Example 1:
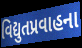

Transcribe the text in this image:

વિદ્યુતપ્રવાહના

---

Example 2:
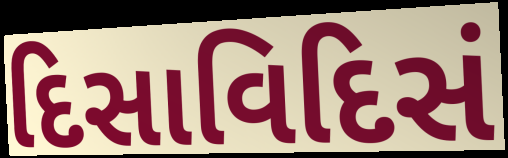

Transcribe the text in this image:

દિસાવિદિસં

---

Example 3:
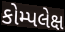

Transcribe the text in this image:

કોમ્પલેક્ષ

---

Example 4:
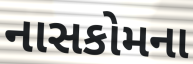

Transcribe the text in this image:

નાસકોમના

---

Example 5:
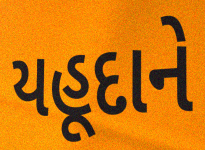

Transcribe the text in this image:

યહૂદાને